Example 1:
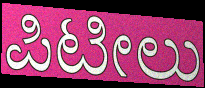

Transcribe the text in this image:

ಪಿಟೀಲು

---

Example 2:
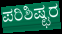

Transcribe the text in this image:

ಪರಿಶಿಷ್ಟರ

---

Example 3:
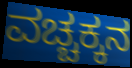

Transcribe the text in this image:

ವಚ್ಚಕ್ಕನ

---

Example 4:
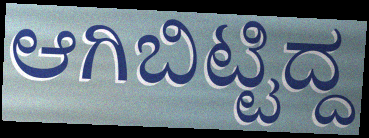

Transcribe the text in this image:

ಆಗಿಬಿಟ್ಟಿದ್ದ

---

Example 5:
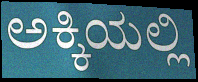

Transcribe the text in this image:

ಅಕ್ಕಿಯಲ್ಲಿ